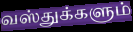
வஸ்துக்களும்